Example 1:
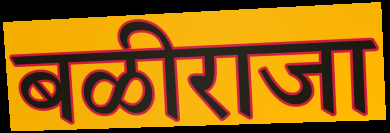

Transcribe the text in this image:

बळीराजा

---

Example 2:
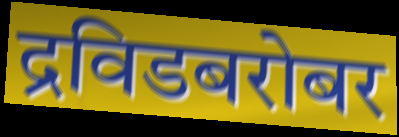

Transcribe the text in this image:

द्रविडबरोबर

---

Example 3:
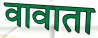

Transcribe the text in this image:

वावाता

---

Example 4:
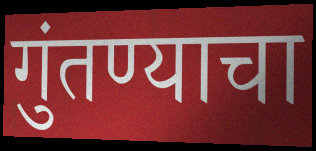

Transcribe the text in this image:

गुंतण्याचा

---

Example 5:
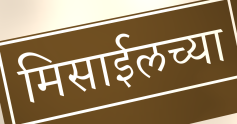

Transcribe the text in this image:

मिसाईलच्या